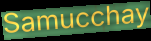
Samucchay